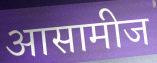
आसामीज